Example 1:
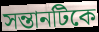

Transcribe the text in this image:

সন্তানটিকে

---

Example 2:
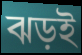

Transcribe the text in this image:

ঝড়ই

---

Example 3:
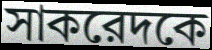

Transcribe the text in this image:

সাকরেদকে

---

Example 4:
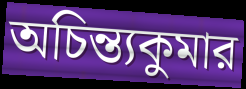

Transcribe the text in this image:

অচিন্ত্যকুমার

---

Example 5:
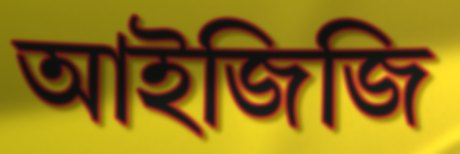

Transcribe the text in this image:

আইজিজি